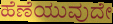
ಹೆಣೆಯುವುದೇ